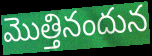
మొత్తినందున